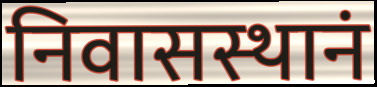
निवासस्थानं